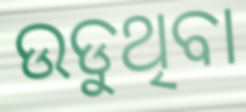
ଉଡୁଥିବା